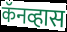
कॅनव्हास